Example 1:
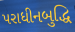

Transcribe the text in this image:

પરાધીનબુદ્ધિ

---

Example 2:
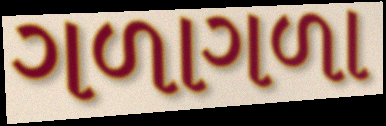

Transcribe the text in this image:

ગળાગળા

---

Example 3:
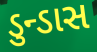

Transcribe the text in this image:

ડુન્ડાસ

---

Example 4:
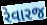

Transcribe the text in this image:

રેવારજ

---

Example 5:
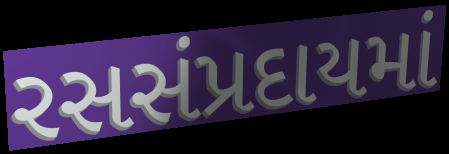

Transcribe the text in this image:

રસસંપ્રદાયમાં